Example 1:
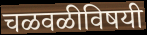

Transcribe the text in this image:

चळवळीविषयी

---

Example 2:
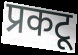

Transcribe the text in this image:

प्रकटू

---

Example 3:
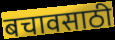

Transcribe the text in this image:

बचावसाठी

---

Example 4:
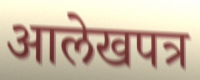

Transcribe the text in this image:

आलेखपत्र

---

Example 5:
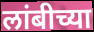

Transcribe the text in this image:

लांबीच्या